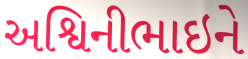
અશ્વિનીભાઇને